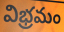
విభ్రమం